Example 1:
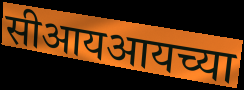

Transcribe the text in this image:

सीआयआयच्या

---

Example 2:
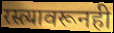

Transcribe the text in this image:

रस्त्यावरूनही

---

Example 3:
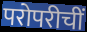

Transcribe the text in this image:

परोपरीचीं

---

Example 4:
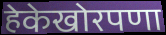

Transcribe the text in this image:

हेकेखोरपणा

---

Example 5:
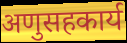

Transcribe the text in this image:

अणुसहकार्य